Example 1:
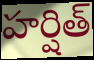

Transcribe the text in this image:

హర్షిత్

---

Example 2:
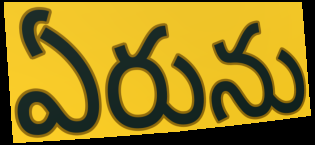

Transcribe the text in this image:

ఏరును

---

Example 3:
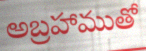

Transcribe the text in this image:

అబ్రహాముతో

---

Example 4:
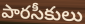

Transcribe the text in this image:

పారసీకులు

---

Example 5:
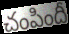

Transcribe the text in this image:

చంపిందీ